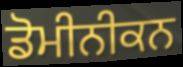
ਡੋਮੀਨੀਕਨ